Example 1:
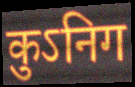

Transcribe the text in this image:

कुऽनिग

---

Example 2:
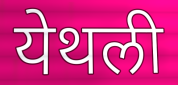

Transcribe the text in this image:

येथली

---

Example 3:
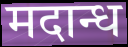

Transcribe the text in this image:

मदान्ध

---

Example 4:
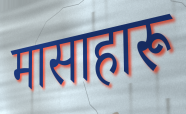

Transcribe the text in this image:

मासाहारू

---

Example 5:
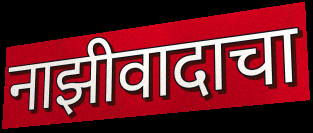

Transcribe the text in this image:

नाझीवादाचा